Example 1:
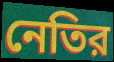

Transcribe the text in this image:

নেতির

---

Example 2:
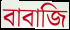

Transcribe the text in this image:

বাবাজি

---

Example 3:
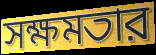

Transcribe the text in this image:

সক্ষমতার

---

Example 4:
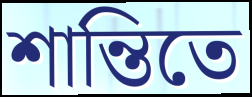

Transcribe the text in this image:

শান্তিতে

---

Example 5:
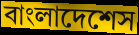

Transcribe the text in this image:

বাংলাদেশেস